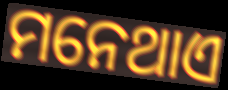
ମନେଥାଏ